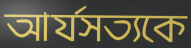
আর্যসত্যকে